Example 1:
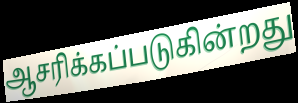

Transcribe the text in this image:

ஆசரிக்கப்படுகின்றது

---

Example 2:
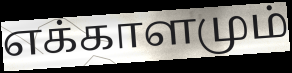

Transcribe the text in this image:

எக்காளமும்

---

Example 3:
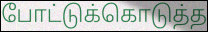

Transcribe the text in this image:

போட்டுக்கொடுத்த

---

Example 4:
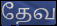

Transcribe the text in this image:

தேவ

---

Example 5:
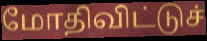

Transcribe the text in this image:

மோதிவிட்டுச்